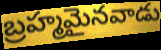
బ్రహ్మమైనవాడు